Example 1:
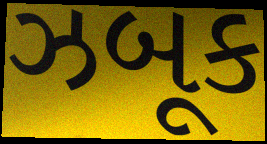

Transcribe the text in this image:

ઝબૂક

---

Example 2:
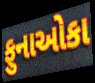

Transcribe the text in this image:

ફુનાઓકા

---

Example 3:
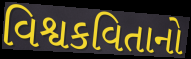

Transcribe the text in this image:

વિશ્વકવિતાનો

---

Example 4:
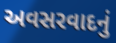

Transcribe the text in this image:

અવસરવાદનું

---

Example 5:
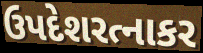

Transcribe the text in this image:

ઉપદેશરત્નાકર